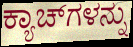
ಕ್ಯಾಚ್‌ಗಳನ್ನು